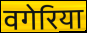
वगेरिया